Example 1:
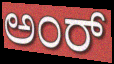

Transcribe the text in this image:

ಅಂರ್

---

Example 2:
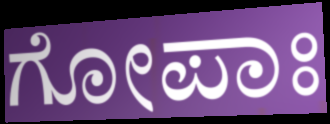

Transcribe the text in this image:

ಗೋಪಾಃ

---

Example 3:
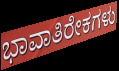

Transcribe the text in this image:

ಭಾವಾತಿರೇಕಗಳು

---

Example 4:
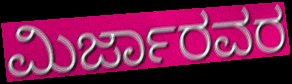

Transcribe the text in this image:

ಮಿರ್ಜಾರವರ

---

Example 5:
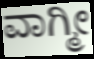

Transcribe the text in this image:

ವಾಗ್ಮೀ